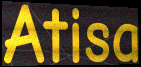
Atisa